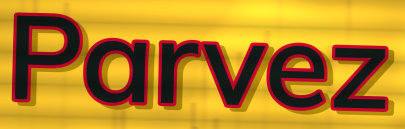
Parvez